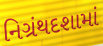
નિગ્રંથદશામાં